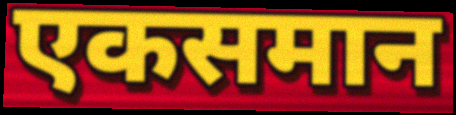
एकसमान